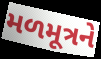
મળમૂત્રને